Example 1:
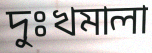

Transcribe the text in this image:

দুঃখমালা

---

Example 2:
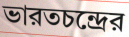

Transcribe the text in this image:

ভারতচন্দ্রের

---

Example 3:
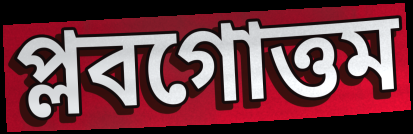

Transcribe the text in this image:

প্লবগোত্তম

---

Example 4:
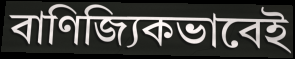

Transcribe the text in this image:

বাণিজ্যিকভাবেই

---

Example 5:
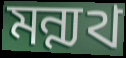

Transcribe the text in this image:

মন্মথ